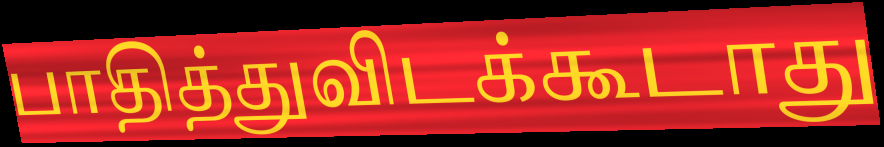
பாதித்துவிடக்கூடாது